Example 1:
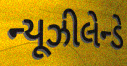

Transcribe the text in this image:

ન્યૂઝીલેન્ડે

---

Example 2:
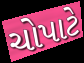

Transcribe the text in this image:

ચોપાટે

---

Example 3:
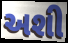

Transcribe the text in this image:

અશી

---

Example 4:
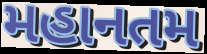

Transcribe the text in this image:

મહાનતમ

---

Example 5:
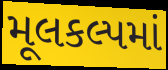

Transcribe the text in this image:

મૂલકલ્પમાં